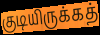
குடியிருக்கத்